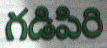
గడిపిరి